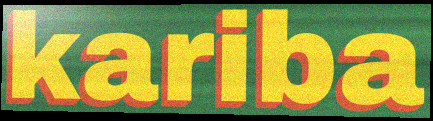
kariba